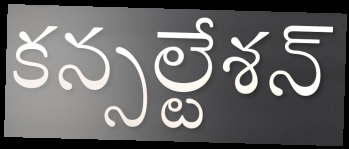
కన్సల్టేశన్